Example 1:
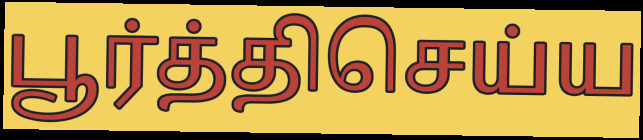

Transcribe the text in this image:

பூர்த்திசெய்ய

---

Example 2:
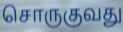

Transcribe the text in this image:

சொருகுவது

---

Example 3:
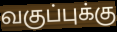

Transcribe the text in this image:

வகுப்புக்கு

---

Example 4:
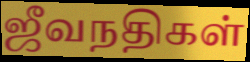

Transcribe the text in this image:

ஜீவநதிகள்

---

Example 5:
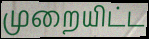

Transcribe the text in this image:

முறையிட்ட